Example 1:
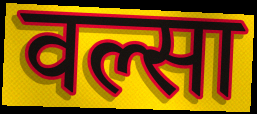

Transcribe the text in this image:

वल्सा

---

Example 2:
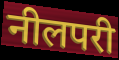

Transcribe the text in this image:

नीलपरी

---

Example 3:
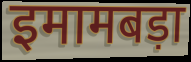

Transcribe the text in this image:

इमामबड़ा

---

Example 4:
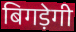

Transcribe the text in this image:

बिगड़ेगी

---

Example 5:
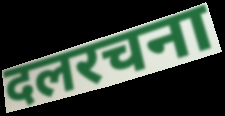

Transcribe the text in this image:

दलरचना